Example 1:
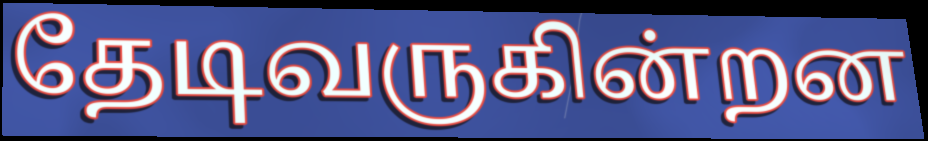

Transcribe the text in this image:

தேடிவருகின்றன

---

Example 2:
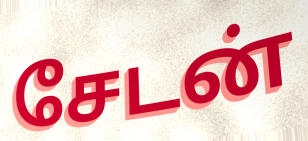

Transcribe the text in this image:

சேடன்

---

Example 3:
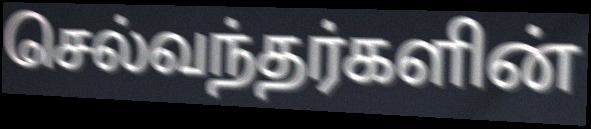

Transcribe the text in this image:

செல்வந்தர்களின்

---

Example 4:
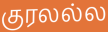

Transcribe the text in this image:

குரலல்ல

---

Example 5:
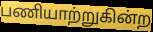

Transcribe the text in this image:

பணியாற்றுகின்ற